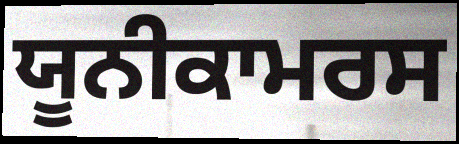
ਯੂਨੀਕਾਮਰਸ